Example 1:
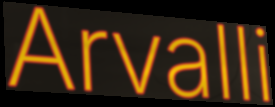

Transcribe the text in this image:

Arvalli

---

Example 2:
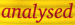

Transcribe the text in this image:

analysed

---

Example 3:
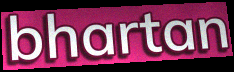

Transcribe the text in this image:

bhartan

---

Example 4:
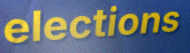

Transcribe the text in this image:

elections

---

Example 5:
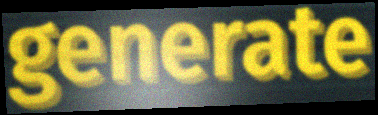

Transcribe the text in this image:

generate